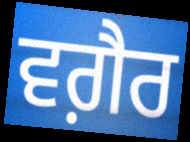
ਵਗ਼ੈਰ